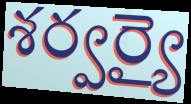
శర్వర్యై